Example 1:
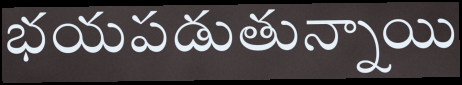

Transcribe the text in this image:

భయపడుతున్నాయి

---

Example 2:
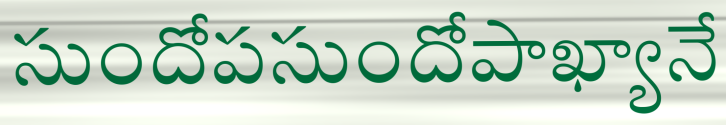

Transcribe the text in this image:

సుందోపసుందోపాఖ్యానే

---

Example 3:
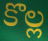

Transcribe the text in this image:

కొల్ల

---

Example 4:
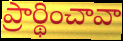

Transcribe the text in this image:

ప్రార్థించావా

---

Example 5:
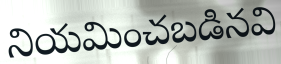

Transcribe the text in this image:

నియమించబడినవి